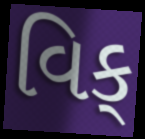
વિક્